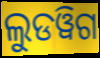
ଲୁଡୱିଗ